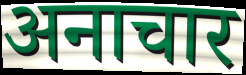
अनाचार